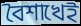
বৈশাখেই